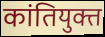
कांतियुक्त